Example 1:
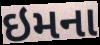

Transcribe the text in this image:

ઇમના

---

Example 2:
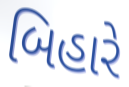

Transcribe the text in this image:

બિહારે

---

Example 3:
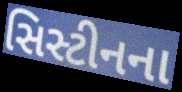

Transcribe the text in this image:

સિસ્ટીનના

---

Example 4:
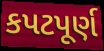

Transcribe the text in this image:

કપટપૂર્ણ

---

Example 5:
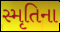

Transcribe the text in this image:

સ્મૃતિના